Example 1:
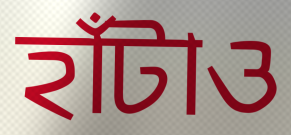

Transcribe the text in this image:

হাঁটাও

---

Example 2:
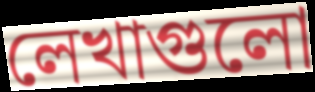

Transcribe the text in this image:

লেখাগুলো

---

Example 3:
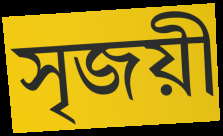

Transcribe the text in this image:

সৃজয়ী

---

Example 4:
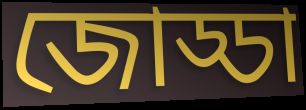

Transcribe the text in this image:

জোড্ডা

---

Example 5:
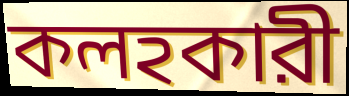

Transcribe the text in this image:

কলহকারী